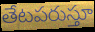
తేటపరుస్తూ